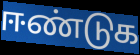
ஈண்டுக